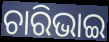
ଚାରିଭାଇ